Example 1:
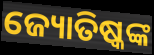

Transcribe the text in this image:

ଜ୍ୟୋତିଷ୍କଙ୍କ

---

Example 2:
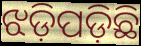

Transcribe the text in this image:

ଝଡ଼ିପଡ଼ିଛି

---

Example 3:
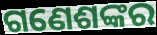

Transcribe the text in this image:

ଗଣେଶଙ୍କର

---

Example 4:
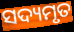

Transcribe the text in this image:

ସଦ୍ୟମୃତ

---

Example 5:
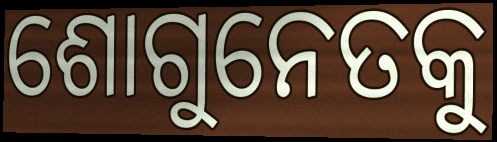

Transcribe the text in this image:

ଶୋଗୁନେତକୁ